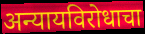
अन्यायविरोधाचा